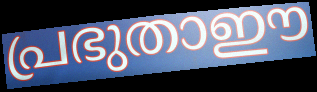
പ്രഭുതാഈ